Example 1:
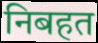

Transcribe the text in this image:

निबहत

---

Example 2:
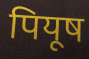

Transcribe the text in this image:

पियूष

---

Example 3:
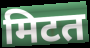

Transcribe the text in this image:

मिटत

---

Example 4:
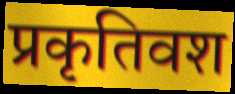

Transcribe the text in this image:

प्रकृतिवश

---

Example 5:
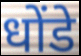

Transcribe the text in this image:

धोंडे